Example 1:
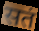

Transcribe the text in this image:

सतं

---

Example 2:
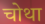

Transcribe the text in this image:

चोथा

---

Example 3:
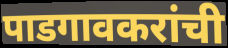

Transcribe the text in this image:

पाडगावकरांची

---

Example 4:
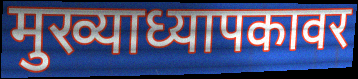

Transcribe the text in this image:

मुख्याध्यापकावर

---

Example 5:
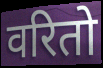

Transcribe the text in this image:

वरितो